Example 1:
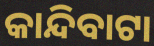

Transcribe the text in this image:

କାନ୍ଦିବାଟା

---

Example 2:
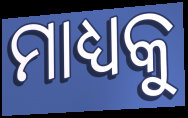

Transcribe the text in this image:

ମାଧ୍ୟକୁ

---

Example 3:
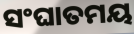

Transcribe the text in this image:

ସଂଘାତମୟ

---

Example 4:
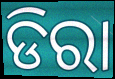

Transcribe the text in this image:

ଡିରା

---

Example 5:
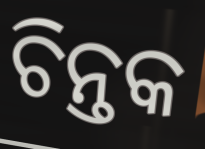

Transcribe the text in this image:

ଚିନ୍ତକ